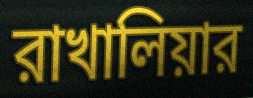
রাখালিয়ার